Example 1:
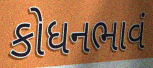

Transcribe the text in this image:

કોધનભાવં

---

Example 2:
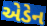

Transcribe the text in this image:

એડેન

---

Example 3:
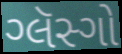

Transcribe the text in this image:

ગ્લૅસ્ગો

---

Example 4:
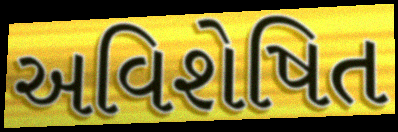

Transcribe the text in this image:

અવિશેષિત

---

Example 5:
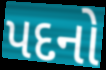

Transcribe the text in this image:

પદનો